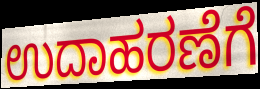
ಉದಾಹರಣೆಗೆ